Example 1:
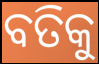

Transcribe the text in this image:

ବତିକୁ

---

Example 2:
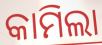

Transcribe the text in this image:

କାମିଲା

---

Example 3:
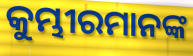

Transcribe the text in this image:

କୁମ୍ଭୀରମାନଙ୍କ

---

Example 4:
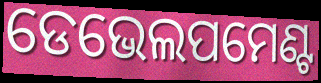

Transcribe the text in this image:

ଡେଭେଲପମେଣ୍ଟ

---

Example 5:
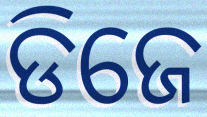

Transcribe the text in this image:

ଡିଜେ